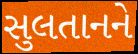
સુલતાનને